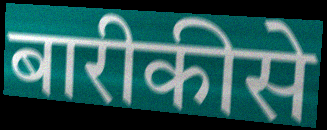
बारीकीसे